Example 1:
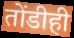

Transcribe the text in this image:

तोंडीही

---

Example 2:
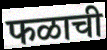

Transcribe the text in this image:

फळाची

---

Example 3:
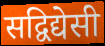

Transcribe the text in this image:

सद्विद्येसी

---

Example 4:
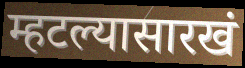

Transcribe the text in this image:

म्हटल्यासारखं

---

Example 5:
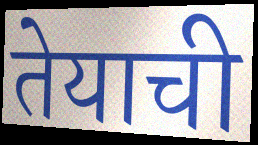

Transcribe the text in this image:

तेयाची